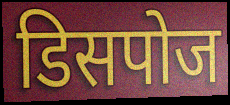
डिसपोज